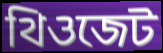
থিওজেট